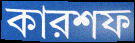
কারশফ